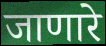
जाणारे